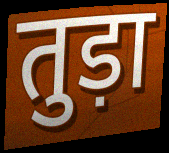
तुड़ा